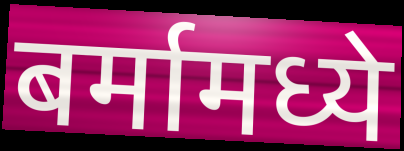
बर्मामध्ये